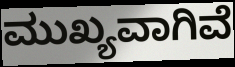
ಮುಖ್ಯವಾಗಿವೆ